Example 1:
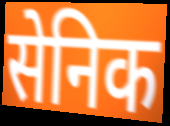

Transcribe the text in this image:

सेनिक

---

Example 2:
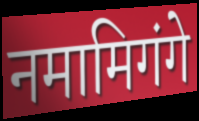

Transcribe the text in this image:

नमामिगंगे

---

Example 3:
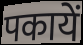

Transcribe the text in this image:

पकायें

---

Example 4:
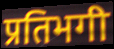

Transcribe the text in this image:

प्रतिभगी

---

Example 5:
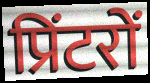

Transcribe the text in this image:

प्रिंटरों